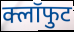
क्लॉफुट